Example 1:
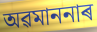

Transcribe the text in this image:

অৱমাননাৰ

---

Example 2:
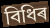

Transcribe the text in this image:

বিধিৰ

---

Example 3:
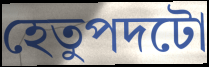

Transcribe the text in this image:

হেতুপদটো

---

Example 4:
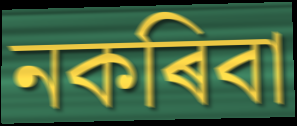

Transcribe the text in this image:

নকৰিবা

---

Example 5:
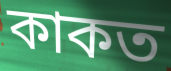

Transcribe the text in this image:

কাকত